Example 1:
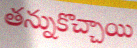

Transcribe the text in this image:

తన్నుకొచ్చాయి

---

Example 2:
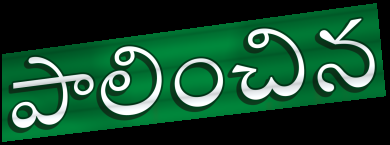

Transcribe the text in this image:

పాలించిన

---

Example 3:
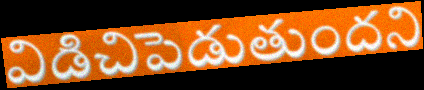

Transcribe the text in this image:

విడిచిపెడుతుందని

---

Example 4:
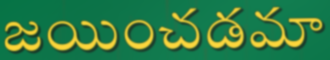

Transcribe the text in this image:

జయించడమా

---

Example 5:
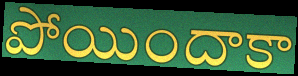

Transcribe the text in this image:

పోయిందాకా